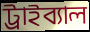
ট্রাইব্যাল